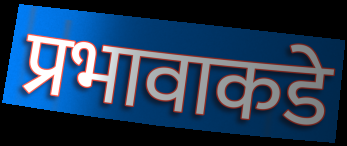
प्रभावाकडे